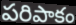
పరిపాకం